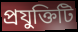
প্রযুক্তিটি